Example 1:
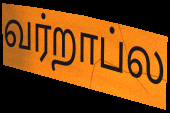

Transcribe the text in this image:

வர்றாப்ல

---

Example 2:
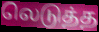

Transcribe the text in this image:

லெடுத்த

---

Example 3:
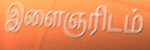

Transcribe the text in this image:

இளைஞரிடம்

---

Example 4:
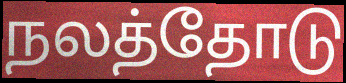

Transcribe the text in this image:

நலத்தோடு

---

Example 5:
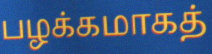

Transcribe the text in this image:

பழக்கமாகத்